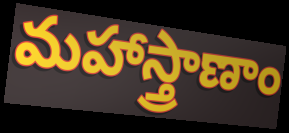
మహాస్త్రాణాం